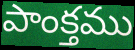
పాంక్తము